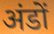
अंडों